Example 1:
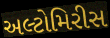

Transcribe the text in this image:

અલ્ટોમિરીસ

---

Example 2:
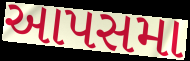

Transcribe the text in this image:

આપસમા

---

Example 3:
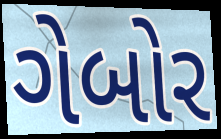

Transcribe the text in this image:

ગેબોર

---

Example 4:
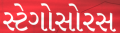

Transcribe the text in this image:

સ્ટેગોસોરસ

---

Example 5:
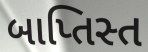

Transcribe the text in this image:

બાપ્તિસ્ત